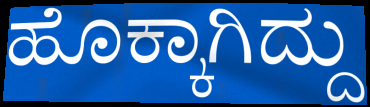
ಹೊಕ್ಕಾಗಿದ್ದು